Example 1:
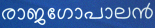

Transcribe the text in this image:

രാജഗോപാലൻ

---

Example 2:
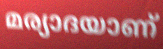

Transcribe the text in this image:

മര്യാദയാണ്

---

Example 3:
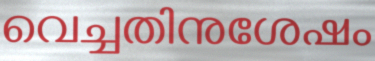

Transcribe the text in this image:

വെച്ചതിനുശേഷം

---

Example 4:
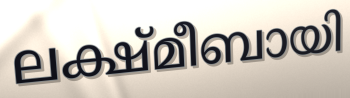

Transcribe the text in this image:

ലക്ഷ്മീബായി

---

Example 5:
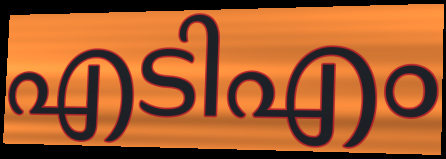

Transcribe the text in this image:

എടിഎം